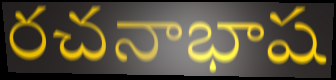
రచనాభాష